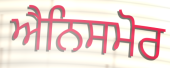
ਐਨਿਸਮੋਰ